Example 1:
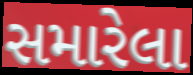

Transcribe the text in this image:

સમારેલા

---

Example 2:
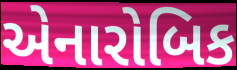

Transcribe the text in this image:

એનારોબિક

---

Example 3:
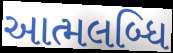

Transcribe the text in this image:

આત્મલબ્ધિ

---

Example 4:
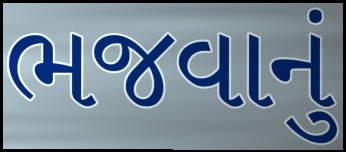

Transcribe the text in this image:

ભજવાનું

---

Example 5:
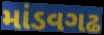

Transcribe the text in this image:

માંડવગઢ